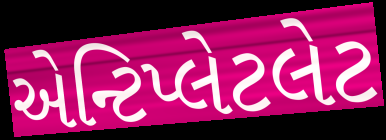
એન્ટિપ્લેટલેટ